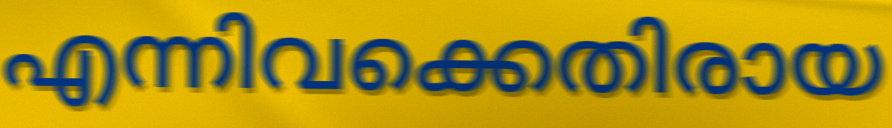
എന്നിവക്കെതിരായ